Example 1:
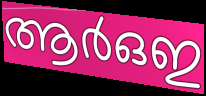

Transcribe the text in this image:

ആർഒഇ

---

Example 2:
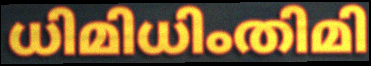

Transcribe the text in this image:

ധിമിധിംതിമി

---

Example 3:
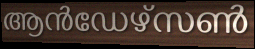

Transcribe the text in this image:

ആൻഡേഴ്സൺ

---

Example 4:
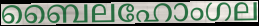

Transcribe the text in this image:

ബൈലഹോംഗല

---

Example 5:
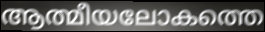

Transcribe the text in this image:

ആത്മീയലോകത്തെ